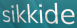
sikkide